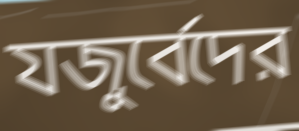
যজুর্বেদের